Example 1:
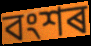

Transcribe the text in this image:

বংশৰ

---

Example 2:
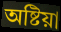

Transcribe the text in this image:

অষ্টিয়া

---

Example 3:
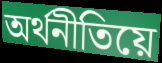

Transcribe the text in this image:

অৰ্থনীতিয়ে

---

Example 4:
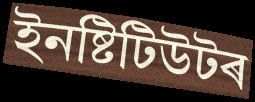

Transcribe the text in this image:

ইনষ্টিটিউটৰ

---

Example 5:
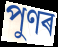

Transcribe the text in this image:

পুণৰ